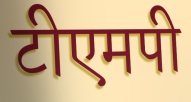
टीएमपी